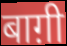
बाग़ी